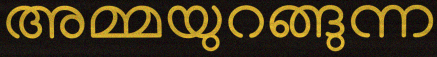
അമ്മയുറങ്ങുന്ന